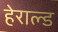
हेराल्ड